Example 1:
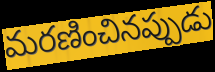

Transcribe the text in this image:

మరణించినప్పుడు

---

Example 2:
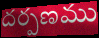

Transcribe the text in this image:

దర్పణము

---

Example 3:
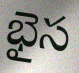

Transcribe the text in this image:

భైస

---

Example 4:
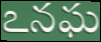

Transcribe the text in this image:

ఽనఘ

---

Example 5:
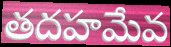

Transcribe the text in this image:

తదహమేవ